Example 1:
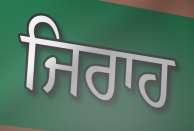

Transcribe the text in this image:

ਜਿਰਾਹ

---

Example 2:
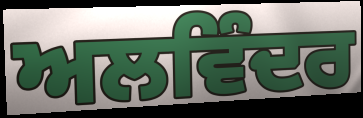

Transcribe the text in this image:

ਅਲਵਿੰਦਰ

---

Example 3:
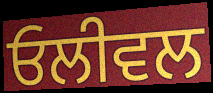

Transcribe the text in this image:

ਓਲੀਵਲ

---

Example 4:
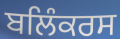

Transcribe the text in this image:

ਬਲਿੰਕਰਸ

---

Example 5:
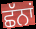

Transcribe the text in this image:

ਛੱਨਾਂ